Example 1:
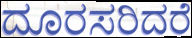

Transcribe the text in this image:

ದೂರಸರಿದರೆ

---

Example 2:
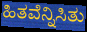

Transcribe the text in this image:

ಹಿತವೆನ್ನಿಸಿತು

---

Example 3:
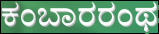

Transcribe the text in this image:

ಕಂಬಾರರಂಥ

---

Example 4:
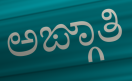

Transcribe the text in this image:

ಅಙ್ಗಾತಿ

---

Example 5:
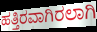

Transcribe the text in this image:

ಹತ್ತಿರವಾಗಿರಲಾಗಿ